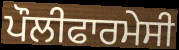
ਪੌਲੀਫਾਰਮੇਸੀ